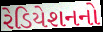
રેડિયેશનનો